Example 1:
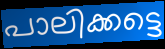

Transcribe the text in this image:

പാലിക്കട്ടെ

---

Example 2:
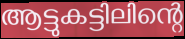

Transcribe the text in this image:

ആട്ടുകട്ടിലിന്റെ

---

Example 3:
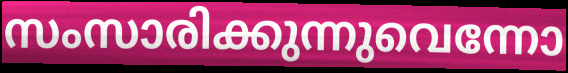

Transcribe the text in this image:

സംസാരിക്കുന്നുവെന്നോ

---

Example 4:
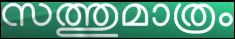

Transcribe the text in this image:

സത്തുമാത്രം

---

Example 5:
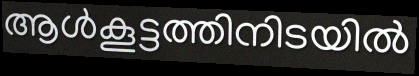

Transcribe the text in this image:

ആൾകൂട്ടത്തിനിടയിൽ